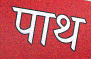
पाथ